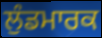
ਲੁੰਡਮਾਰਕ